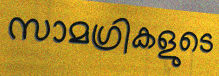
സാമഗ്രികളുടെ